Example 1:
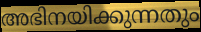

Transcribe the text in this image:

അഭിനയിക്കുന്നതും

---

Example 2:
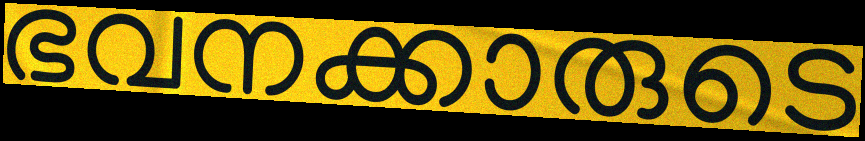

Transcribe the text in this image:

ഭവനക്കാരുടെ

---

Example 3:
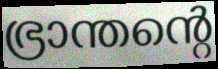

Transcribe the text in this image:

ഭ്രാന്തന്റെ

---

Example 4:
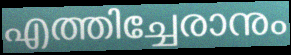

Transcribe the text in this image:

എത്തിച്ചേരാനും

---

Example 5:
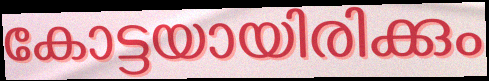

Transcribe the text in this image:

കോട്ടയായിരിക്കും